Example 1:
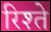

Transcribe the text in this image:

रिश्ते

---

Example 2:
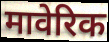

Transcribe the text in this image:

मावेरिक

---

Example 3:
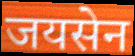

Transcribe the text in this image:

जयसेन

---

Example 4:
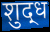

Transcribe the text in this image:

शुद्ध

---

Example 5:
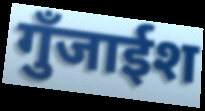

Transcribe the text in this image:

गुँजाईश